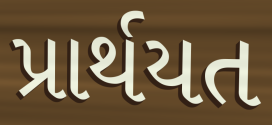
પ્રાર્થયત